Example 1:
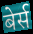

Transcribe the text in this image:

बेर्स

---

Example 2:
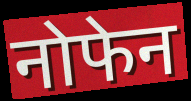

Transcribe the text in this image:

नोफेन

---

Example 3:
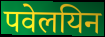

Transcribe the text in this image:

पवेलयिन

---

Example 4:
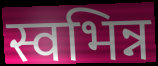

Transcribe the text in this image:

स्वभिन्न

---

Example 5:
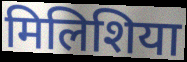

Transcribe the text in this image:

मिलिशिया